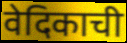
वेदिकाची